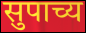
सुपाच्य